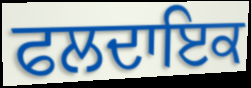
ਫਲਦਾਇਕ